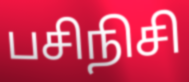
பசிநிசி